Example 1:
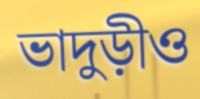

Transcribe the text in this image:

ভাদুড়ীও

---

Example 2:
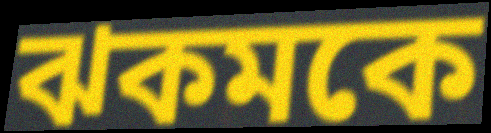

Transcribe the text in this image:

ঝকমকে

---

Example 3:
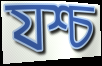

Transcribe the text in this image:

যশ্চ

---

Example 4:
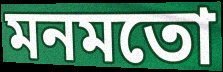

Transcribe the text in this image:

মনমতো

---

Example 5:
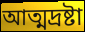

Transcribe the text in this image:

আত্মদ্রষ্টা